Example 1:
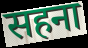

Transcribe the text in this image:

सहना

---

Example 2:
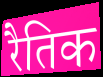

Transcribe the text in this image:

रैतिक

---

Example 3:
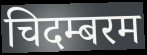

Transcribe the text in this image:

चिदम्बरम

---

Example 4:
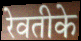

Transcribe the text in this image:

रेवतीके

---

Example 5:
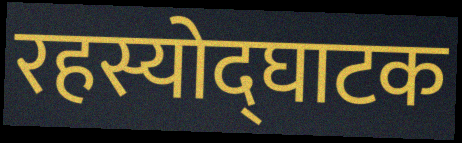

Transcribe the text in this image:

रहस्योद्घाटक